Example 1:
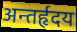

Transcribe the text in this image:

अन्तर्हृदय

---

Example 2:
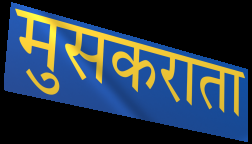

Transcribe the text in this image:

मुसकराता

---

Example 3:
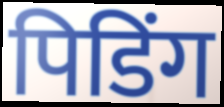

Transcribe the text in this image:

पिडिंग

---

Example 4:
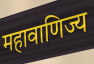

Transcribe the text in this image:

महावाणिज्‍य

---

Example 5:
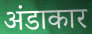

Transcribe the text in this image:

अंडाकार